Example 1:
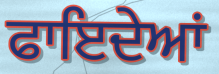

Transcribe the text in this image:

ਫਾਇਦੇਆਂ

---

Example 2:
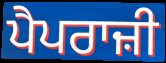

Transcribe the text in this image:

ਪੈਪਰਾਜ਼ੀ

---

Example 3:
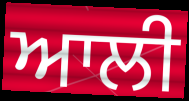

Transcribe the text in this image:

ਆਲੀ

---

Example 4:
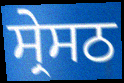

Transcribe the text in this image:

ਸ੍ਰੇਸਠ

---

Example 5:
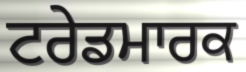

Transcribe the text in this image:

ਟਰੇਡਮਾਰਕ